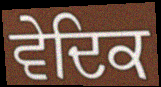
ਵੇਦਿਕ